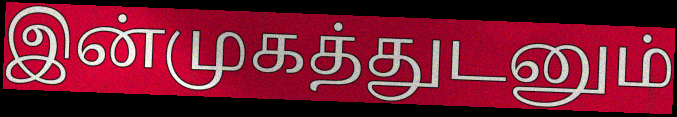
இன்முகத்துடனும்